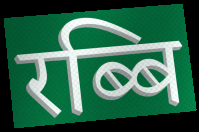
रब्बि